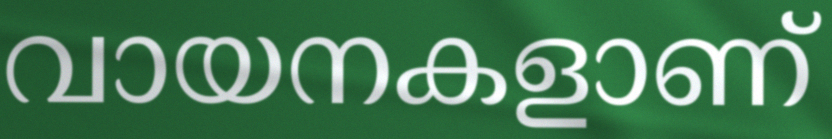
വായനകളാണ്